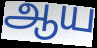
ஆய